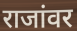
राजांवर